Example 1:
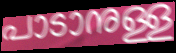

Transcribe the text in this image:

പാടാനുള്ള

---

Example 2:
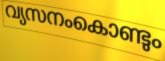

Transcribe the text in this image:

വ്യസനംകൊണ്ടും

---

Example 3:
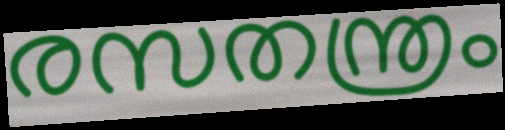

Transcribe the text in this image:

രസതന്ത്രം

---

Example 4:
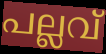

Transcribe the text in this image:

പല്ലവ്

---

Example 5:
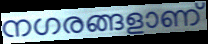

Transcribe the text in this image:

നഗരങ്ങളാണ്